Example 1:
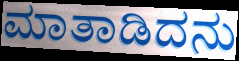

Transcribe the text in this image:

ಮಾತಾಡಿದನು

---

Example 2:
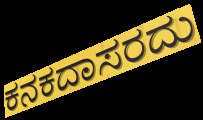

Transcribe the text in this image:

ಕನಕದಾಸರದು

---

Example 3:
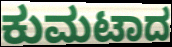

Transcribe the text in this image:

ಕುಮಟಾದ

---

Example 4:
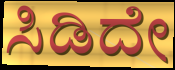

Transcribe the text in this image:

ಸಿಡಿದೇ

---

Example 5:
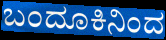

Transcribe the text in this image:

ಬಂದೂಕಿನಿಂದ